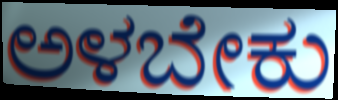
ಅಳಬೇಕು